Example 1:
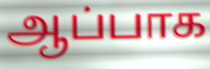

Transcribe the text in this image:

ஆப்பாக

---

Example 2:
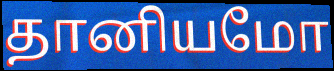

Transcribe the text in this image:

தானியமோ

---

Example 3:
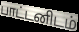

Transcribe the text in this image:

பாட்டனிடம்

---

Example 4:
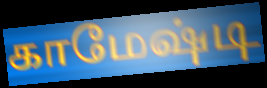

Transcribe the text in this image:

காமேஷ்டி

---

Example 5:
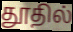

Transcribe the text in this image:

தூதில்